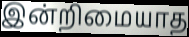
இன்றிமையாத